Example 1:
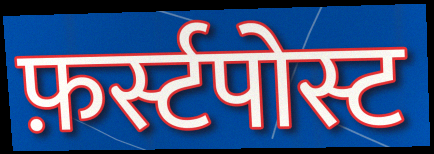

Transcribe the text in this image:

फ़र्स्टपोस्ट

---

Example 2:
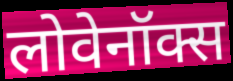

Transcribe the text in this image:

लोवेनॉक्स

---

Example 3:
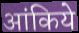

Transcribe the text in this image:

आंकिये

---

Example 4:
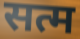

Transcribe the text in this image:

सत्म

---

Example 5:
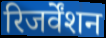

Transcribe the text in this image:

रिजर्वेंशन